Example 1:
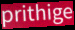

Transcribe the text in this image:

prithige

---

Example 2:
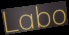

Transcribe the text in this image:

Labo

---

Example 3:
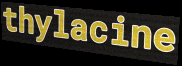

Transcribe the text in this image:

thylacine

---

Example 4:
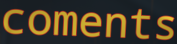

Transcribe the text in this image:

coments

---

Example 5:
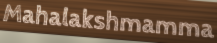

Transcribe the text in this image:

Mahalakshmamma